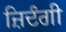
ਜ਼ਿਦੰਗੀ